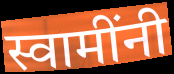
स्वामींनी